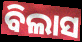
ବିଲାସ